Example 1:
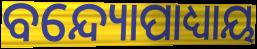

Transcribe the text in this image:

ବନ୍ଦ୍ୟୋପାଧ୍ୟାୟ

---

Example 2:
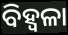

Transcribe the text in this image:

ବିହ୍ଵଳା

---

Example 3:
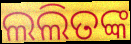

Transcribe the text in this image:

ଲଲିତଙ୍କ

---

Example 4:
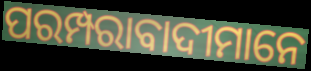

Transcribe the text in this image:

ପରମ୍ପରାବାଦୀମାନେ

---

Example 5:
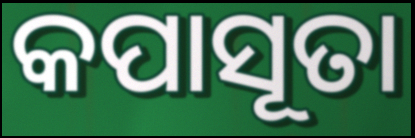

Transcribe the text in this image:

କପାସୂତା